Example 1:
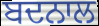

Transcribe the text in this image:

ਬਦਨਾਲ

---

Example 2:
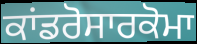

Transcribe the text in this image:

ਕਾਂਡਰੋਸਾਰਕੋਮਾ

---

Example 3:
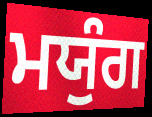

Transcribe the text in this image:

ਮਯੁੰਗ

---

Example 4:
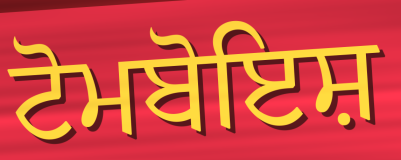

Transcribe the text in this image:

ਟੋਮਬੋਇਸ਼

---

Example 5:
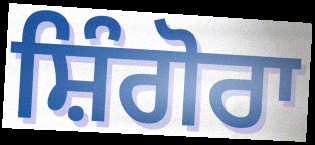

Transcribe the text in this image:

ਸ਼ਿੰਗੋਰਾ